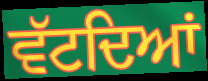
ਵੱਟਦਿਆਂ